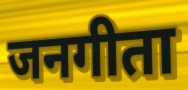
जनगीता